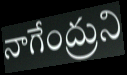
నాగేంద్రుని